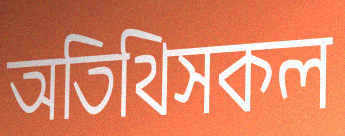
অতিথিসকল